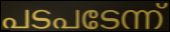
പടപടേന്ന്